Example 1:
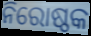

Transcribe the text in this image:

ନିରୋଷ୍ଠକ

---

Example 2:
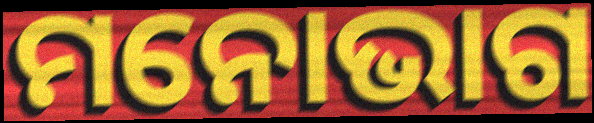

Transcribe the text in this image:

ମନୋଭାଗ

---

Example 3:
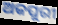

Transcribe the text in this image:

ଅକପୁରୀ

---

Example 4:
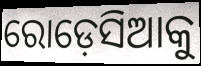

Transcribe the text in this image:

ରୋଡ଼େସିଆକୁ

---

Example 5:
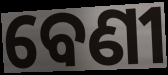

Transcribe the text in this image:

ବେଣୀ